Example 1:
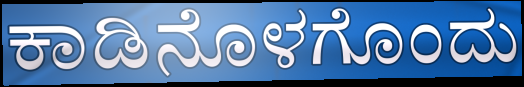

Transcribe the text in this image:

ಕಾಡಿನೊಳಗೊಂದು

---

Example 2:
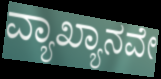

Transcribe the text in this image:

ವ್ಯಾಖ್ಯಾನವೇ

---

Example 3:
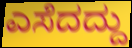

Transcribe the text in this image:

ಎಸೆದದ್ದು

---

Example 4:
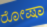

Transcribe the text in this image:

ರೋಷಾ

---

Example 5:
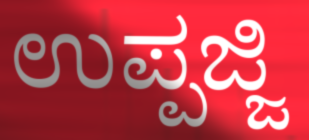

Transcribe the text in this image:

ಉಪ್ಪಜ್ಜಿ